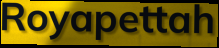
Royapettah